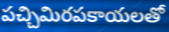
పచ్చిమిరపకాయలతో